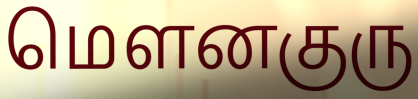
மௌனகுரு